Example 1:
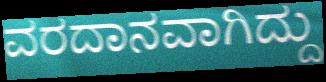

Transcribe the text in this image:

ವರದಾನವಾಗಿದ್ದು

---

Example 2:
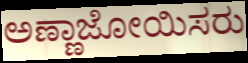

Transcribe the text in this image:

ಅಣ್ಣಾಜೋಯಿಸರು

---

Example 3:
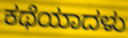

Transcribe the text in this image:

ಕಥೆಯಾದಳು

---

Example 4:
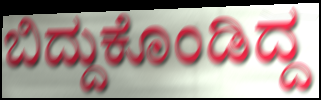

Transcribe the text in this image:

ಬಿದ್ದುಕೊಂಡಿದ್ದ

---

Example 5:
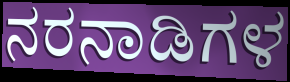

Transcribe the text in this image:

ನರನಾಡಿಗಳ